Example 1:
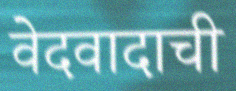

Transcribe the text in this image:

वेदवादाची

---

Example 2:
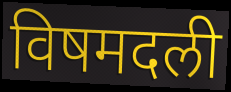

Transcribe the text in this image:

विषमदली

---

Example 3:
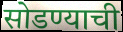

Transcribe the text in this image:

सोडण्याची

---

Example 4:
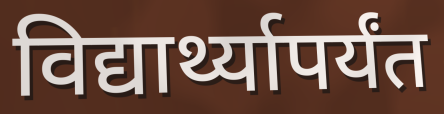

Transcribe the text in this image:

विद्यार्थ्यापर्यंत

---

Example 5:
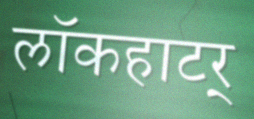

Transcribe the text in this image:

लॉकहाटर्